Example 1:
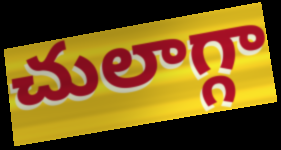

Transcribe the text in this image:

చులాగ్గా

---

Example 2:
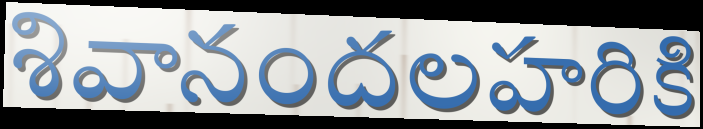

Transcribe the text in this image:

శివానందలహరికి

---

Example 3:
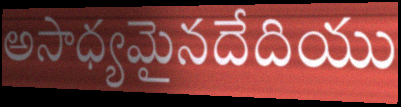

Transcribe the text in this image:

అసాధ్యమైనదేదియు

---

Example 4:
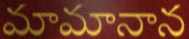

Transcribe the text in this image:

మామానాన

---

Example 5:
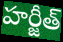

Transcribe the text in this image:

హర్జీత్